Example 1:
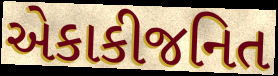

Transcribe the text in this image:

એકાકીજનિત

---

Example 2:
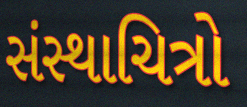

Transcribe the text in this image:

સંસ્થાચિત્રો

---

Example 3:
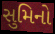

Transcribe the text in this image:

સુમિનો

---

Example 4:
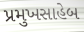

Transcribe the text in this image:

પ્રમુખસાહેબ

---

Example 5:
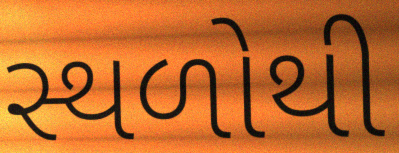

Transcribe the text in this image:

સ્થળોથી